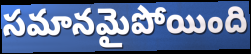
సమానమైపోయింది